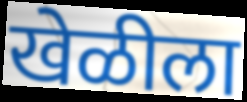
खेळीला